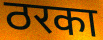
ठरका